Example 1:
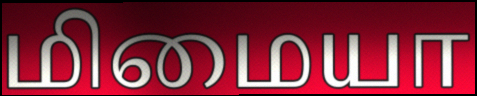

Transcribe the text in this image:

மிமையா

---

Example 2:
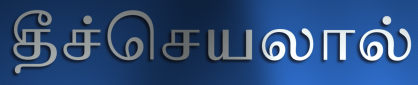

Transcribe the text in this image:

தீச்செயலால்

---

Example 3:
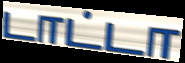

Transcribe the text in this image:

டாட்டா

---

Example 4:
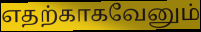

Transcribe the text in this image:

எதற்காகவேனும்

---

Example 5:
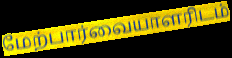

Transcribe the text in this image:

மேற்பார்வையாளரிடம்